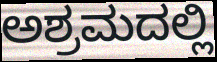
ಅಶ್ರಮದಲ್ಲಿ